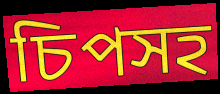
চিপসহ